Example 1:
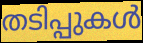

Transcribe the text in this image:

തടിപ്പുകൾ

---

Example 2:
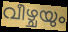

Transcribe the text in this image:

വീഴ്ചയും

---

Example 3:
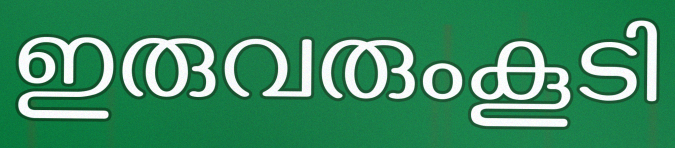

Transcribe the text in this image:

ഇരുവരുംകൂടി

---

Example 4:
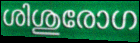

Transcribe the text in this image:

ശിശുരോഗ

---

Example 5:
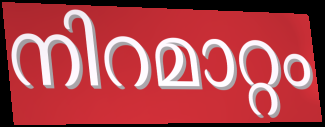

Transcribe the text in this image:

നിറമാറ്റം